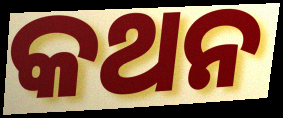
କଥନ